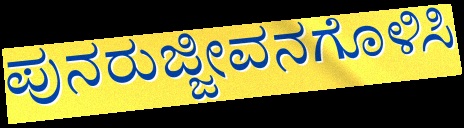
ಪುನರುಜ್ಜೀವನಗೊಳಿಸಿ